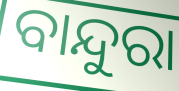
ବାନ୍ଦୁରା